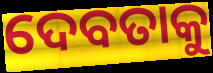
ଦେବତାକୁ